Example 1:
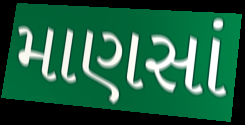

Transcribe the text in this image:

માણસાં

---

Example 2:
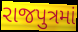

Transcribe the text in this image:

રાજપુત્રમાં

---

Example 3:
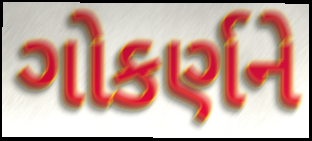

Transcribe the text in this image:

ગોકર્ણને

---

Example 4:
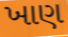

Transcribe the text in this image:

ખાણ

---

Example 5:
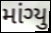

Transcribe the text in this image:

માંગ્યુ